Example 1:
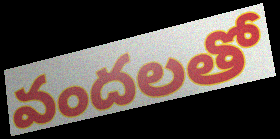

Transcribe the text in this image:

వందలతో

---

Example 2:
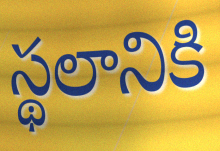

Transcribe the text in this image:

స్థలానికి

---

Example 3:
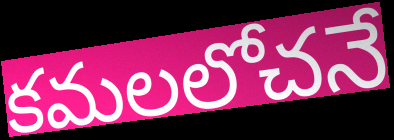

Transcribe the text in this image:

కమలలోచనే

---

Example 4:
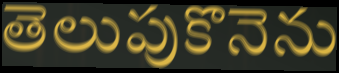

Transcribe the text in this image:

తెలుపుకొనెను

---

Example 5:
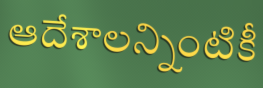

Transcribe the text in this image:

ఆదేశాలన్నింటికీ